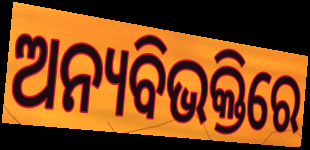
ଅନ୍ୟବିଭକ୍ତିରେ